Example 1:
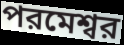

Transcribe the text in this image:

পরমেশ্বর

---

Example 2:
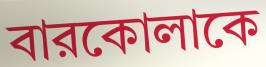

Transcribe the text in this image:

বারকোলাকে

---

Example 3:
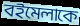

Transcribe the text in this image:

বইমেলাকে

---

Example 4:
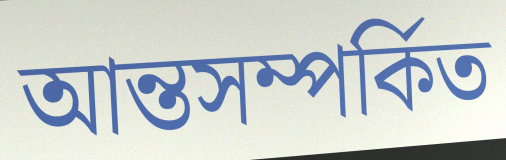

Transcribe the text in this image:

আন্তসম্পর্কিত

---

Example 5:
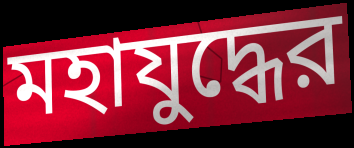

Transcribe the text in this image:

মহাযুদ্ধের